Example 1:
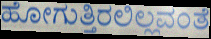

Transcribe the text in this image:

ಹೋಗುತ್ತಿರಲಿಲ್ಲವಂತೆ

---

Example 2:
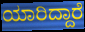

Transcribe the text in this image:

ಯಾರಿದ್ದಾರೆ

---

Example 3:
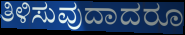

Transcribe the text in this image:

ತಿಳಿಸುವುದಾದರೂ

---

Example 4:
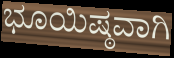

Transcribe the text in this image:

ಭೂಯಿಷ್ಠವಾಗಿ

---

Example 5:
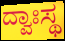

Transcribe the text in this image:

ದ್ವಾಃಸ್ಥ